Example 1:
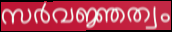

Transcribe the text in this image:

സർവജ്ഞത്വം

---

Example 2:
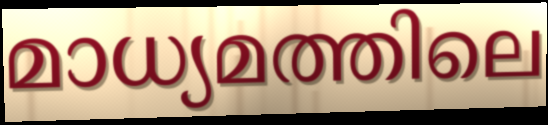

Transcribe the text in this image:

മാധ്യമത്തിലെ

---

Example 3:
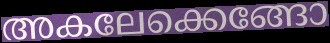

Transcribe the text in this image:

അകലേക്കെങ്ങോ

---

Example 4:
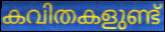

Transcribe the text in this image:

കവിതകളുണ്ട്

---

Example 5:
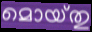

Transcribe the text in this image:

മൊയ്‌തു